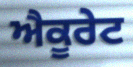
ਐਕੂਰੇਟ